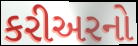
કરીઅરનો